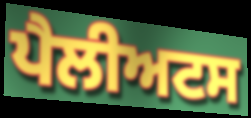
ਪੈਲੀਅਟਸ